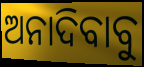
ଅନାଦିବାବୁ